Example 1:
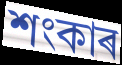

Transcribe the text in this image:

শংকাৰ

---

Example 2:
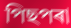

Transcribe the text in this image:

পিছপৰা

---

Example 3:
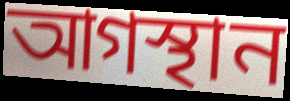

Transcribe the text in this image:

আগস্থান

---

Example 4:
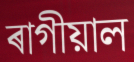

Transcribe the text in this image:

ৰাগীয়াল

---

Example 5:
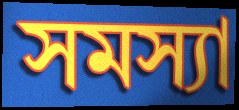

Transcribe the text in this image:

সমস্যা